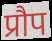
प्रौप